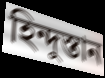
হিন্দুস্তান